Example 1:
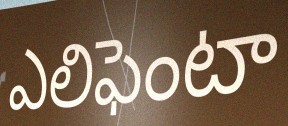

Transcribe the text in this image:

ఎలిఫెంటా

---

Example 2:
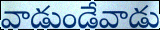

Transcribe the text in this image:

వాడుండేవాడు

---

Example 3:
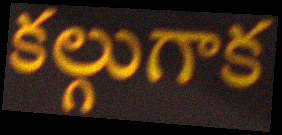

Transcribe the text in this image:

కల్గుగాక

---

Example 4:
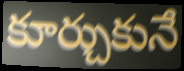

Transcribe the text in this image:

కూర్చుకునే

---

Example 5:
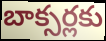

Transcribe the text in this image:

బాక్సర్లకు